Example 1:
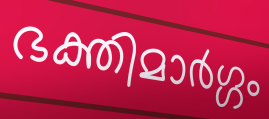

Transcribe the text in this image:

ഭക്തിമാർഗ്ഗം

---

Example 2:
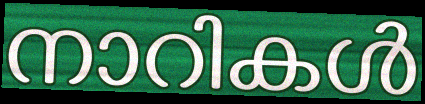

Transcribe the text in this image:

നാറികൾ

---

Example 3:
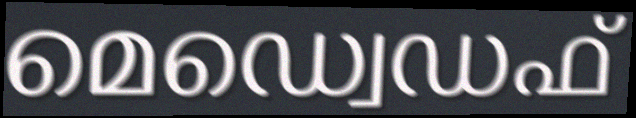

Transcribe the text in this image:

മെഡ്വെഡഫ്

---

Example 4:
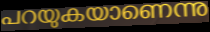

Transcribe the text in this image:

പറയുകയാണെന്നു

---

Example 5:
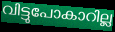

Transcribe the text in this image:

വിട്ടുപോകാറില്ല